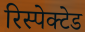
रिस्पेक्टेड